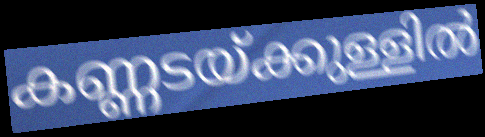
കണ്ണടയ്ക്കുള്ളിൽ